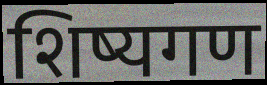
शिष्यगण